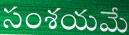
సంశయమే